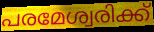
പരമേശ്വരിക്ക്